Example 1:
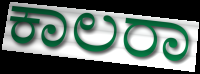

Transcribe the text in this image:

ಕಾಲರಾ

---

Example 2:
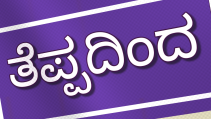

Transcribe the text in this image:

ತೆಪ್ಪದಿಂದ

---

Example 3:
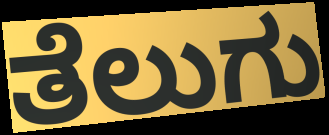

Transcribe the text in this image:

ತೆಲುಗು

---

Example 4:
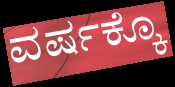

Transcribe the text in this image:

ವರ್ಷಕ್ಕೊ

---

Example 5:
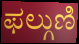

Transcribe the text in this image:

ಫಲ್ಗುಣಿ